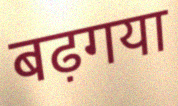
बढ़गया